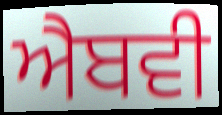
ਐਬਵੀ